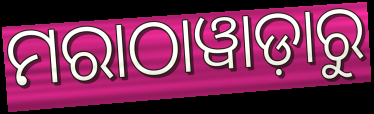
ମରାଠାୱାଡ଼ାରୁ